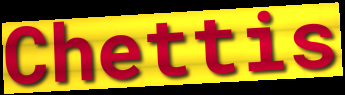
Chettis